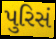
પુરિસં